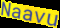
Naavu